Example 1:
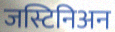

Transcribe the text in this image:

जस्टिनिअन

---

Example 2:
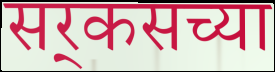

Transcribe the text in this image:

सर्कसच्या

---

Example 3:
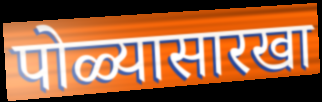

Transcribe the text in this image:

पोळ्यासारखा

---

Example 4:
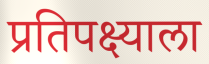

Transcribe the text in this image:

प्रतिपक्ष्याला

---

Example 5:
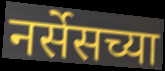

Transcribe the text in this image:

नर्सेसच्या